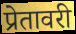
प्रेतावरी